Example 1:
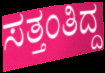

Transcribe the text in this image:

ಸತ್ತಂತಿದ್ದ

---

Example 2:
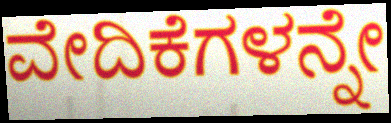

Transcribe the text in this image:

ವೇದಿಕೆಗಳನ್ನೇ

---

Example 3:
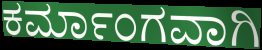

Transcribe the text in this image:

ಕರ್ಮಾಂಗವಾಗಿ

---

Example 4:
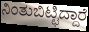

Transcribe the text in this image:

ನಿಂತುಬಿಟ್ಟಿದ್ದಾರೆ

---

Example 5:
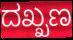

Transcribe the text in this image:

ದಖ್ಖಣ